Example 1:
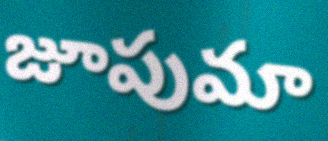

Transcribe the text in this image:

జూపుమా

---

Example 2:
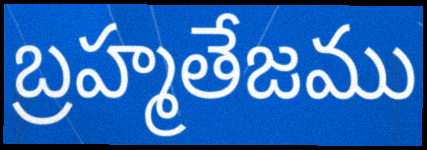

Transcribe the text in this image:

బ్రహ్మతేజము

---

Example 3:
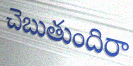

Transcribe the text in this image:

చెబుతుందిరా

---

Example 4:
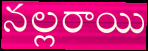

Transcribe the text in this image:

నల్లరాయి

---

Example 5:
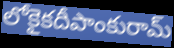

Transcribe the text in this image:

లోకైకదీపాంకురామ్